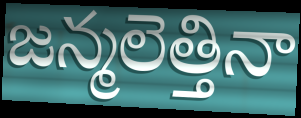
జన్మలెత్తినా